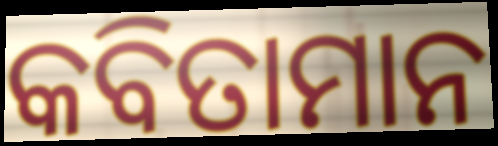
କବିତାମାନ